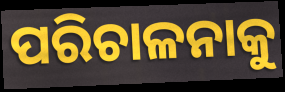
ପରିଚାଳନାକୁ